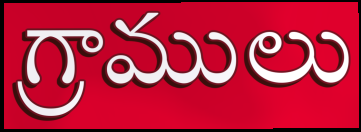
గ్రాములు